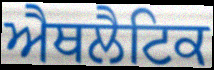
ਐਥਲੈਟਿਕ